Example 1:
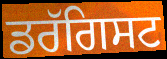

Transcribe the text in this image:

ਡਰੱਗਿਸਟ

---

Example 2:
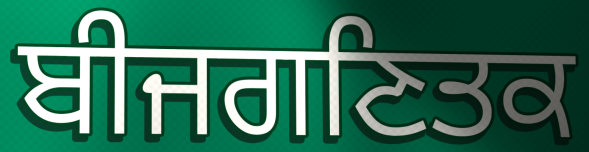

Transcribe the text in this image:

ਬੀਜਗਣਿਤਕ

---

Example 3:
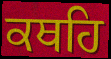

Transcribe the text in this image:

ਕਥਹਿ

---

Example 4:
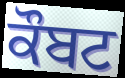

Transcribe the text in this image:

ਕੌਬਟ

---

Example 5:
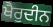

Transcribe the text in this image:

ਖੈਰੁਦੀਨ